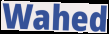
Wahed